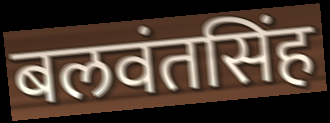
बलवंतसिंह